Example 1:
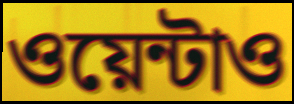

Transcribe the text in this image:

ওয়েন্টাও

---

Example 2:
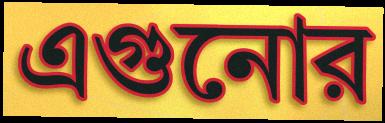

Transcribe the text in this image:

এগুনোর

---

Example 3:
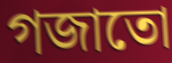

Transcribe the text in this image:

গজাতো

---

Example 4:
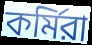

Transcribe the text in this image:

কর্মিরা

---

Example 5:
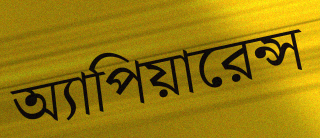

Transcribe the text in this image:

অ্যাপিয়ারেন্স